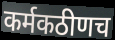
कर्मकठीणच